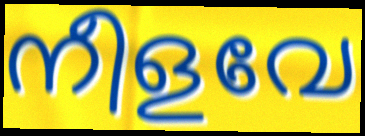
നീളവേ